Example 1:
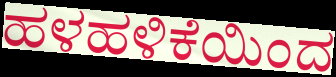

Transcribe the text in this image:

ಹಳಹಳಿಕೆಯಿಂದ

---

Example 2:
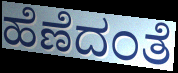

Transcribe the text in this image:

ಹೆಣೆದಂತೆ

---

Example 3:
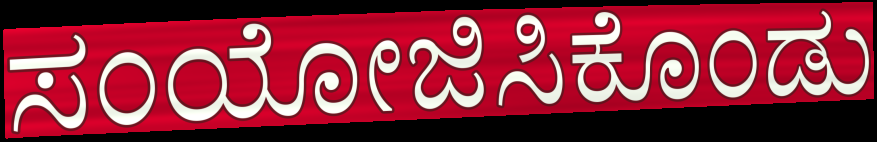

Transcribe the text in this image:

ಸಂಯೋಜಿಸಿಕೊಂಡು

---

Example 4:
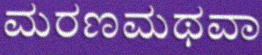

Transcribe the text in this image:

ಮರಣಮಥವಾ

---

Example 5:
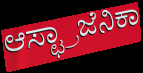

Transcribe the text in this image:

ಆಸ್ಟ್ರಾಜೆನಿಕಾ